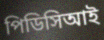
পিডিসিআই